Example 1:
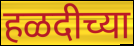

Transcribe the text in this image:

हळदीच्या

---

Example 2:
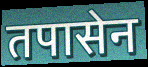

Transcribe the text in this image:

तपासेन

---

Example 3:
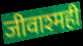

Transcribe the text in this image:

जीवाश्मही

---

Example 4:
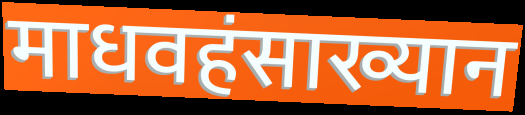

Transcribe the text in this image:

माधवहंसाख्यान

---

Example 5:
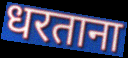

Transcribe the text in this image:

धरताना